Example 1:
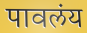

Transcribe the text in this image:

पावलंय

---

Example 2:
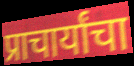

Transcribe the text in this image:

प्राचार्यांचा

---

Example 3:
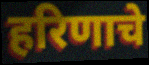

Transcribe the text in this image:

हरिणाचे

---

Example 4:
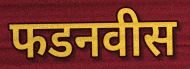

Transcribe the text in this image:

फडनवीस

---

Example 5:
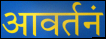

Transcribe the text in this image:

आवर्तनं